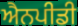
ਐਨਪੀਡੀ